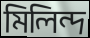
মিলিন্দ